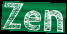
Zen